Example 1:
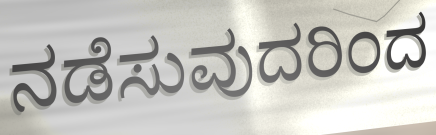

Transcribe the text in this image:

ನಡೆಸುವುದರಿಂದ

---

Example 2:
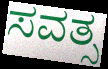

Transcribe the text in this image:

ಸವತ್ಸ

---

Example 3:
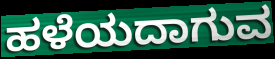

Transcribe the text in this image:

ಹಳೆಯದಾಗುವ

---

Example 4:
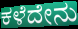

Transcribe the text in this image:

ಕಳೆದೇನು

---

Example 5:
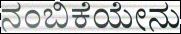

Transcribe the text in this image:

ನಂಬಿಕೆಯೇನು